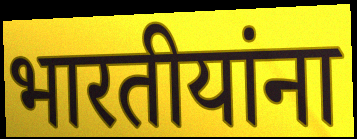
भारतीयांना